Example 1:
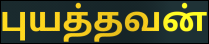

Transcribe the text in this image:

புயத்தவன்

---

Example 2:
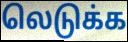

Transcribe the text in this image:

லெடுக்க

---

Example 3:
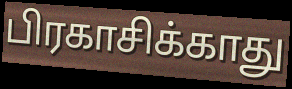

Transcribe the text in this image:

பிரகாசிக்காது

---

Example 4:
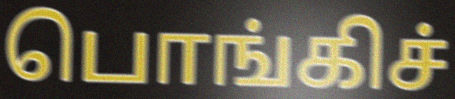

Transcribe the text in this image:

பொங்கிச்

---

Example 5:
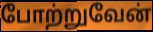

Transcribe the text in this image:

போற்றுவேன்